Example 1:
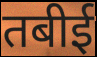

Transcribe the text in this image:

तबीई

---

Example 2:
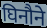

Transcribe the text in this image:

घिनौने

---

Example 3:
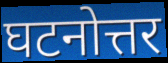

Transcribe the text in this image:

घटनोत्तर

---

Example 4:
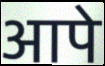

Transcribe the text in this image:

आपे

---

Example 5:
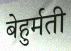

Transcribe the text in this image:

बेहुर्मती